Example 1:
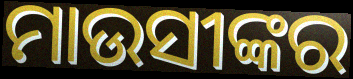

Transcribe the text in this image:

ମାଉସୀଙ୍କର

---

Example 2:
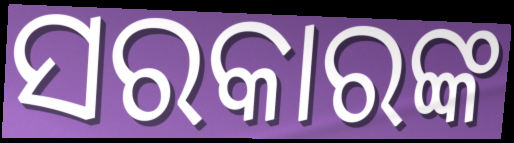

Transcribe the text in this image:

ସରକାରଙ୍କ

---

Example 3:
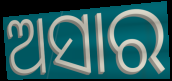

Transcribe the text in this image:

ଅସାର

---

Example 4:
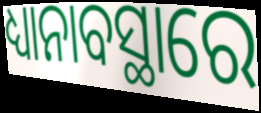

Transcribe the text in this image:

ଧ୍ୟାନାବସ୍ଥାରେ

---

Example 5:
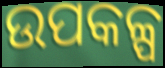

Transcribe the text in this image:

ଉପକଳ୍ପ